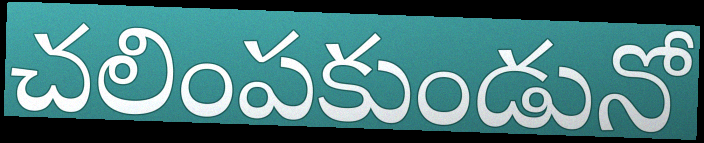
చలింపకుండునో